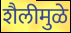
शैलीमुळे